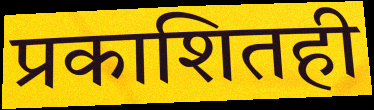
प्रकाशितही